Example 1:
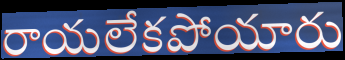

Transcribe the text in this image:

రాయలేకపోయారు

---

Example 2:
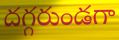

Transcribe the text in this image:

దగ్గరుండగా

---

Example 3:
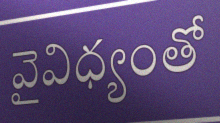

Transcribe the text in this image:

వైవిధ్యంతో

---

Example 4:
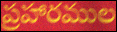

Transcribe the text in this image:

ప్రహారముల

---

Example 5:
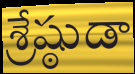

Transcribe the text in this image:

శ్రేష్ఠుడా